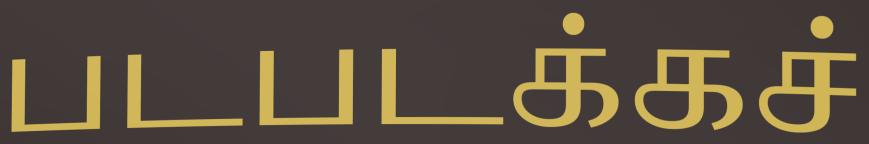
படபடக்கச்